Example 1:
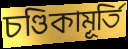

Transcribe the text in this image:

চণ্ডিকামূর্তি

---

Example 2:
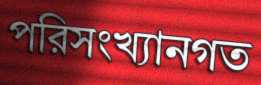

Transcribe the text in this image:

পরিসংখ্যানগত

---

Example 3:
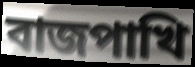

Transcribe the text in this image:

বাজপাখি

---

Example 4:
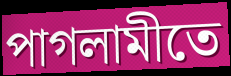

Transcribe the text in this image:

পাগলামীতে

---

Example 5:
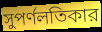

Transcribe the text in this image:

সুপর্ণলতিকার